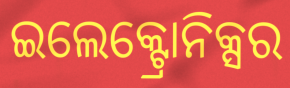
ଇଲେକ୍ଟ୍ରୋନିକ୍ସର